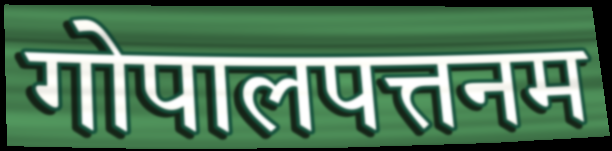
गोपालपत्तनम